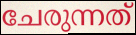
ചേരുന്നത്